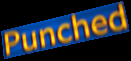
Punched